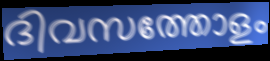
ദിവസത്തോളം